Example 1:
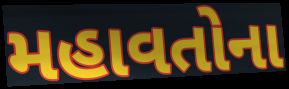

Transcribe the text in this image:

મહાવતોના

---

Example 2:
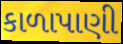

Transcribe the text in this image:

કાળાપાણી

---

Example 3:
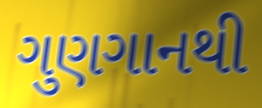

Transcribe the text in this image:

ગુણગાનથી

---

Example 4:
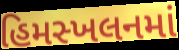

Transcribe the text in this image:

હિમસ્ખલનમાં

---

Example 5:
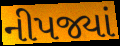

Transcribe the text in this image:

નીપજ્યાં